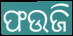
ଫଉଜି